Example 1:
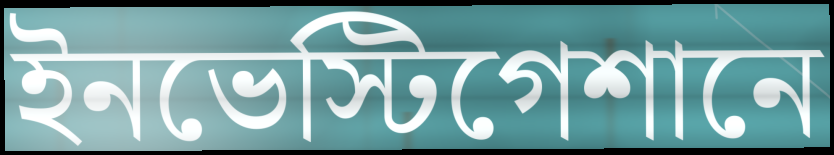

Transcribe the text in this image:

ইনভেস্টিগেশানে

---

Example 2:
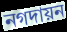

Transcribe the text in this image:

নগদায়ন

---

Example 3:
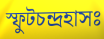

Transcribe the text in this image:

স্ফুটচন্দ্রহাসঃ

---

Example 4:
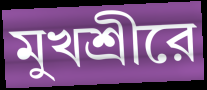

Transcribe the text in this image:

মুখশ্রীরে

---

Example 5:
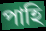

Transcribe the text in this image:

পাহি